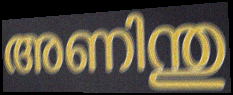
അണിന്തു